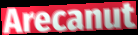
Arecanut